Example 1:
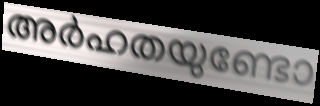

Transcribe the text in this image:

അർഹതയുണ്ടോ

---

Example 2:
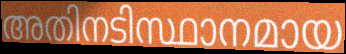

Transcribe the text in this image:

അതിനടിസ്ഥാനമായ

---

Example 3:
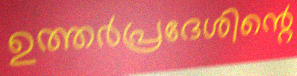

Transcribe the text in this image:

ഉത്തർപ്രദേശിന്റെ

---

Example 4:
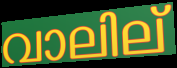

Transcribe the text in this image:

വാലില്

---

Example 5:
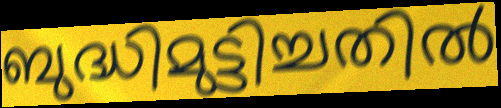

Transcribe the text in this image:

ബുദ്ധിമുട്ടിച്ചതിൽ